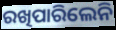
ରଖିପାରିଲେନି